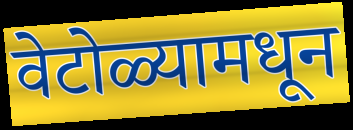
वेटोळ्यामधून